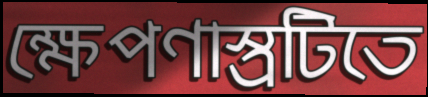
ক্ষেপণাস্ত্রটিতে